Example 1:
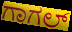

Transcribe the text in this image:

ಗಾಗಲ್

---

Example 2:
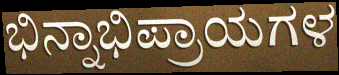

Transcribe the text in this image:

ಭಿನ್ನಾಭಿಪ್ರಾಯಗಳ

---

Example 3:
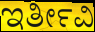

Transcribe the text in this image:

ಇರ್ತೀವಿ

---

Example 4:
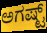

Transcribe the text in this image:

ಅಗಷ್ಟ್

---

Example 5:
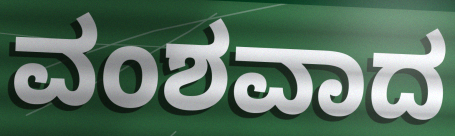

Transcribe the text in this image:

ವಂಶವಾದ